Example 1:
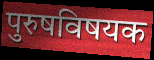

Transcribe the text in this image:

पुरुषविषयक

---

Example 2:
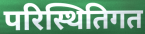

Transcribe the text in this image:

परिस्थितिगत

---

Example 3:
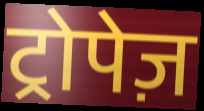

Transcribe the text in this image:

ट्रोपेज़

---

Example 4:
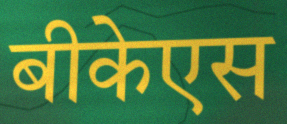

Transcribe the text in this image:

बीकेएस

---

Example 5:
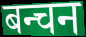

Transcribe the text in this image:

बन्चन